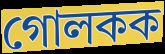
গোলকক